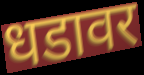
धडावर